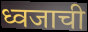
ध्वजाची